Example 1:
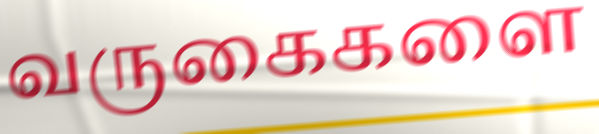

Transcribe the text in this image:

வருகைகளை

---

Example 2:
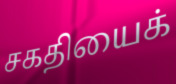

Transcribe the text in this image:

சகதியைக்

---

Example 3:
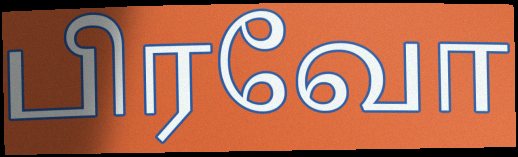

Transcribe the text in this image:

பிரவோ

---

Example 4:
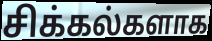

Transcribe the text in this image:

சிக்கல்களாக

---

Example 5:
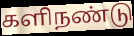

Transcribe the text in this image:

களிநண்டு